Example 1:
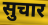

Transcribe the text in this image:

सुचार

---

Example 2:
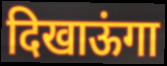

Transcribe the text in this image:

दिखाऊंगा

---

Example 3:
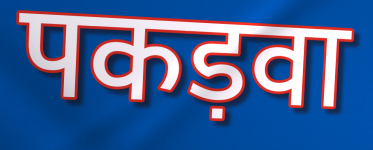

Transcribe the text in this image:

पकड़वा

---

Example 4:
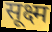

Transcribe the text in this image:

सूक्ष्‍म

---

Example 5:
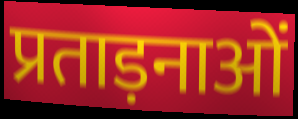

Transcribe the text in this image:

प्रताड़नाओं